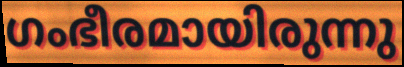
ഗംഭീരമായിരുന്നു